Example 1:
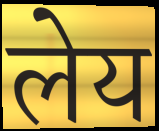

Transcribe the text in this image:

लेय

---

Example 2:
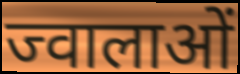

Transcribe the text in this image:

ज्वालाओं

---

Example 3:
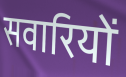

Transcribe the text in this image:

सवारियों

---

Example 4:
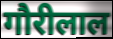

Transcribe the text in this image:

गौरीलाल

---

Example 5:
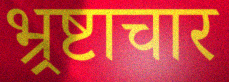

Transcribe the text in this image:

भ्र्रष्टाचार